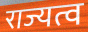
राज्यत्व